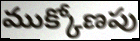
ముక్కోణపు